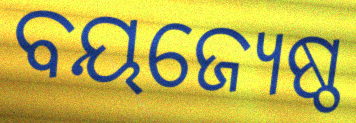
ବୟଜ୍ୟେଷ୍ଠ